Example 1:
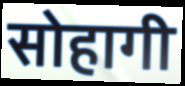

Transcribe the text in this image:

सोहागी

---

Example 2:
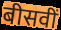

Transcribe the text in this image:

बीसवीं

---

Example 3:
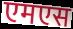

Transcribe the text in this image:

एमएस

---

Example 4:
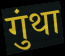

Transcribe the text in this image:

गुंथा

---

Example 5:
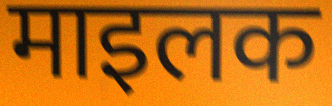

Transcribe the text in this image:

माइलक